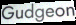
Gudgeon